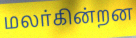
மலர்கின்றன